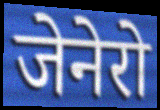
जेनेरो